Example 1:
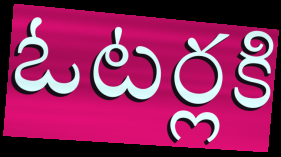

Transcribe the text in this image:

ఓటర్లకి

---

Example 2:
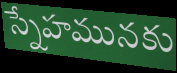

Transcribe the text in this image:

స్నేహమునకు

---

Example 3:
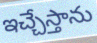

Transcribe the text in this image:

ఇచ్చేస్తాను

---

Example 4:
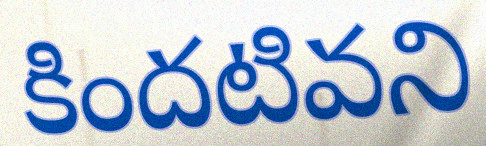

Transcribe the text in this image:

కిందటివని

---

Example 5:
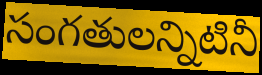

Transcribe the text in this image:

సంగతులన్నిటినీ